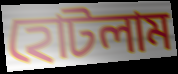
হোটলাম